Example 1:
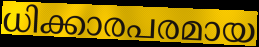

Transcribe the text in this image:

ധിക്കാരപരമായ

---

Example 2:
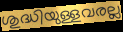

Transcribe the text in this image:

ശുദ്ധിയുള്ളവരല്ല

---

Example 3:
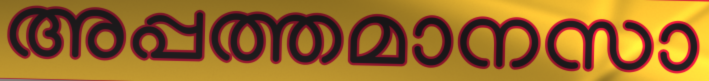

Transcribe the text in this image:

അപ്പത്തമാനസാ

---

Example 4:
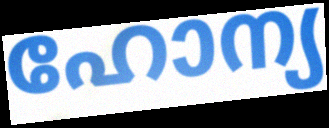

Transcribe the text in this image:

ഹോന്യ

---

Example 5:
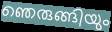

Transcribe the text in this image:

ഞെരുങ്ങിയും